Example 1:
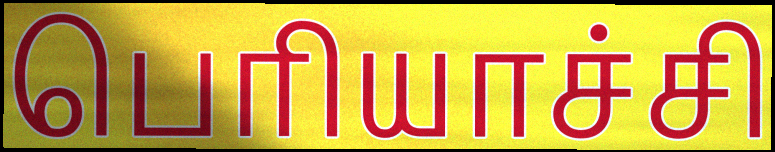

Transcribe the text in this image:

பெரியாச்சி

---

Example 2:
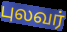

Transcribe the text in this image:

புலவர்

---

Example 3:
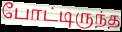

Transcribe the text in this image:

போட்டிருந்த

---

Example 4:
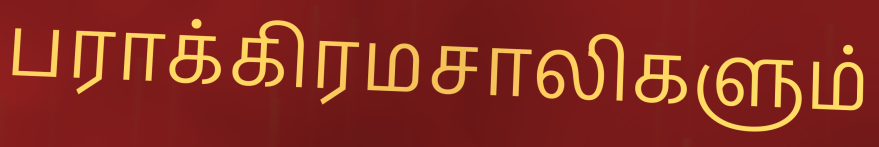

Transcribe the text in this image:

பராக்கிரமசாலிகளும்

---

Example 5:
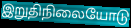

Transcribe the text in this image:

இறுதிநிலையோடு